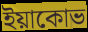
ইয়াকোভ